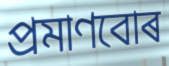
প্ৰমাণবোৰ